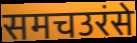
समचउरंसे